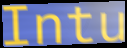
Intu